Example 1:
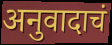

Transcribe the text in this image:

अनुवादाचं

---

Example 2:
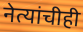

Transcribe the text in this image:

नेत्यांचीही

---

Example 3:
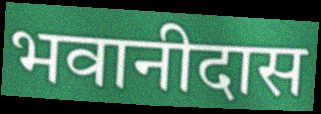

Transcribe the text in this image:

भवानीदास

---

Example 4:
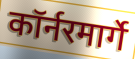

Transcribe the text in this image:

कॉर्नरमार्गे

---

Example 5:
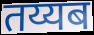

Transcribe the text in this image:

तय्यब